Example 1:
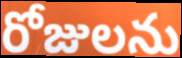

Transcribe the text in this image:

రోజులను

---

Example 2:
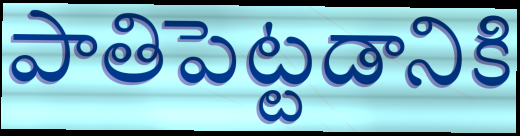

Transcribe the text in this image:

పాతిపెట్టడానికి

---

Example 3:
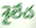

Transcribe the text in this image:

శైలేచ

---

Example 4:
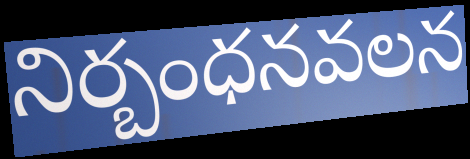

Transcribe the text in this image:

నిర్బంధనవలన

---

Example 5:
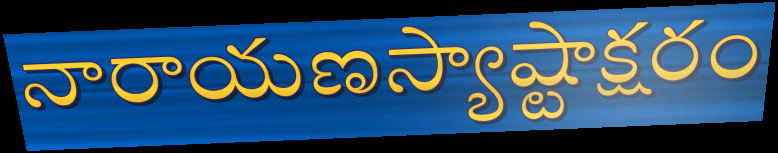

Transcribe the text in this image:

నారాయణస్యాష్టాక్షరం